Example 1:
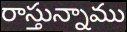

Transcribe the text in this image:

రాస్తున్నాము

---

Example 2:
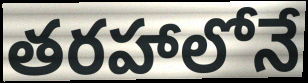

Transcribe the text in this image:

తరహాలోనే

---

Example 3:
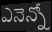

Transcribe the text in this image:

ఎనెన్నో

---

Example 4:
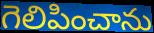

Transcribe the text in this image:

గెలిపించాను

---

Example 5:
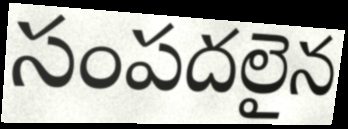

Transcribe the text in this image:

సంపదలైన